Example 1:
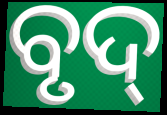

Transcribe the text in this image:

ବୃଦ୍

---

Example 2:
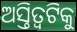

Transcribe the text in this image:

ଅସ୍ତିତ୍ୱଟିକୁ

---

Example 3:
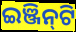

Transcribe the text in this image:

ଇଞ୍ଜିନ୍‌ଟି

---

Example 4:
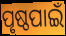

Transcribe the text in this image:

ପୃଷ୍ଠପାଇଁ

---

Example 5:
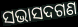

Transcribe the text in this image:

ସଭାସଦଗଣ